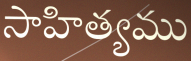
సాహిత్యము